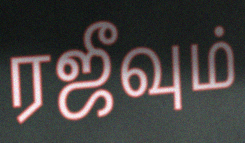
ரஜீவும்